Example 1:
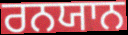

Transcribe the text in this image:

ਰਨਯਾਨ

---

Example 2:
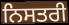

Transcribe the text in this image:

ਨਿਸਤਰੀ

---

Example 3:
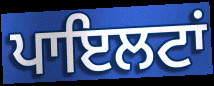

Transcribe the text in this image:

ਪਾਇਲਟਾਂ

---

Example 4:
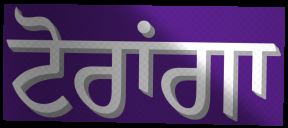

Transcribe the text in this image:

ਟੋਰਾਂਗਾ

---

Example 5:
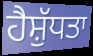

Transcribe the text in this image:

ਹੈਸ਼ੁੱਧਤਾ